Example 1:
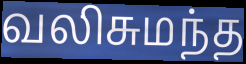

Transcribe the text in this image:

வலிசுமந்த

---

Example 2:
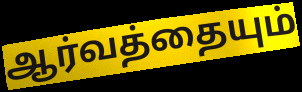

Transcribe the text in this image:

ஆர்வத்தையும்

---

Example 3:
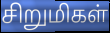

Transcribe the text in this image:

சிறுமிகள்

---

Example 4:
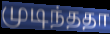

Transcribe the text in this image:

முடிந்ததா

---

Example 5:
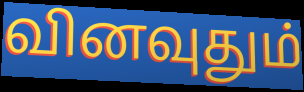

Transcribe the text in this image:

வினவுதும்